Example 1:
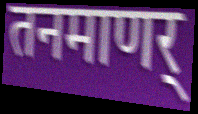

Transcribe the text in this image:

तनमाणर्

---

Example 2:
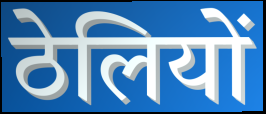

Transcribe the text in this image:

ठेलियों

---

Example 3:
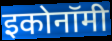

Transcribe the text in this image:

इकोनॉमी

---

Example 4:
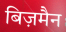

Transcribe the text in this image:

बिज़मैन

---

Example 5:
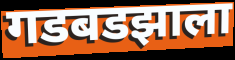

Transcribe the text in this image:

गडबडझाला